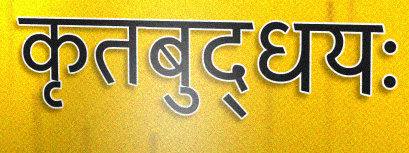
कृतबुद्धयः